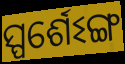
ସ୍ପର୍ଶେଽଙ୍ଗ